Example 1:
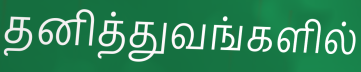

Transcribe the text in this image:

தனித்துவங்களில்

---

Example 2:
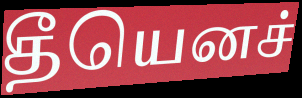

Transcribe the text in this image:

தீயெனச்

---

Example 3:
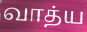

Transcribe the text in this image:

வாத்ய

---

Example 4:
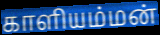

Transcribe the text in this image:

காளியம்மன்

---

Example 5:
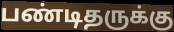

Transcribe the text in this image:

பண்டிதருக்கு